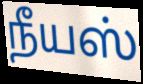
நீயஸ்